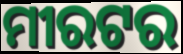
ମୀରଟର